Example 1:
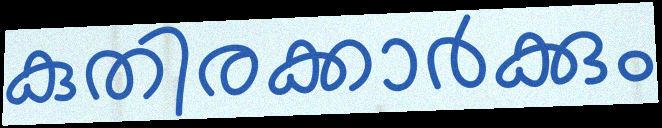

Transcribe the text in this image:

കുതിരക്കാർക്കും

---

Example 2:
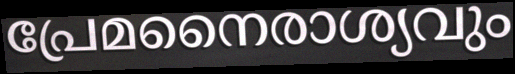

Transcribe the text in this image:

പ്രേമനൈരാശ്യവും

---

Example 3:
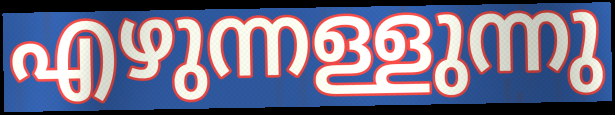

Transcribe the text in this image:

എഴുന്നള്ളുന്നു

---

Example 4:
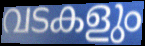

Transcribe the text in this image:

വടകളും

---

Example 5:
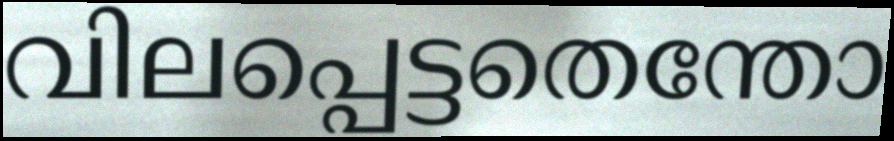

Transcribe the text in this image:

വിലപ്പെട്ടതെന്തോ